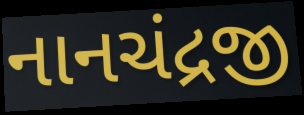
નાનચંદ્રજી